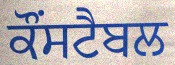
ਕੌਂਸਟੈਬਲ